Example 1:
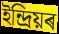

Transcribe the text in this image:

ইন্দ্ৰিয়ৰ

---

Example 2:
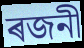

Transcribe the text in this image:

ৰজনী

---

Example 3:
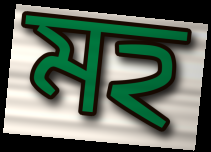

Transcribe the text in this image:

মহ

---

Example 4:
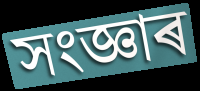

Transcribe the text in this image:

সংজ্ঞাৰ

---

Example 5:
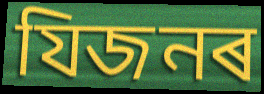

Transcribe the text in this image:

যিজনৰ